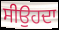
ਸੀਉਹਦਾ